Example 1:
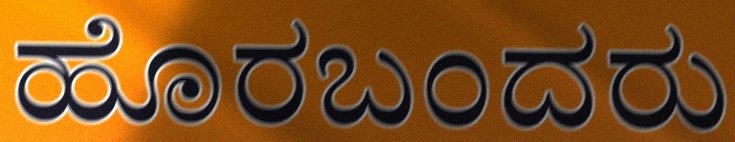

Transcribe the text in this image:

ಹೊರಬಂದರು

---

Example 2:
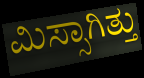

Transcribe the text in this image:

ಮಿಸ್ಸಾಗಿತ್ತು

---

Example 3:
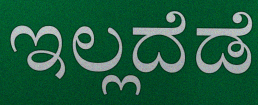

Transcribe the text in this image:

ಇಲ್ಲದೆಡೆ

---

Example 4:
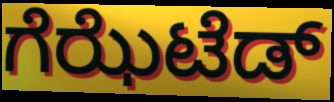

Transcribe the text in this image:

ಗೆಝೆಟೆಡ್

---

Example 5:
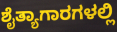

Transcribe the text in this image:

ಶೈತ್ಯಾಗಾರಗಳಲ್ಲಿ